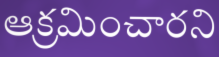
ఆక్రమించారని